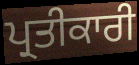
ਪ੍ਰਤੀਕਾਰੀ